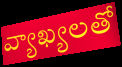
వ్యాఖ్యలతో